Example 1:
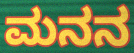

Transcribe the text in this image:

ಮನನ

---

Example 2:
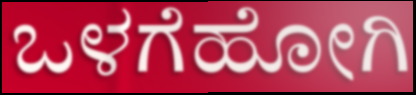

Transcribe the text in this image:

ಒಳಗೆಹೋಗಿ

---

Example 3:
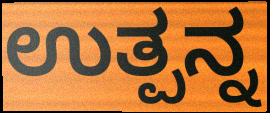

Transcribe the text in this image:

ಉತ್ಪನ್ನ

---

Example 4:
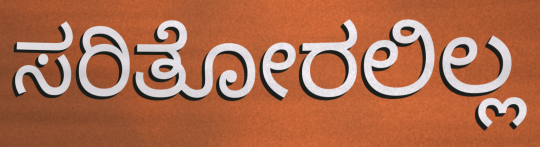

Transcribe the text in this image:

ಸರಿತೋರಲಿಲ್ಲ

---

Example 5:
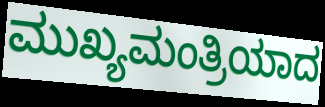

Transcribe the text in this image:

ಮುಖ್ಯಮಂತ್ರಿಯಾದ